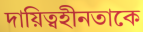
দায়িত্বহীনতাকে